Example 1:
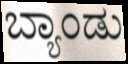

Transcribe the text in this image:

ಬ್ಯಾಂಡು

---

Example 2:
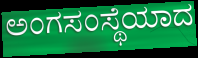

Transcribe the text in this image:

ಅಂಗಸಂಸ್ಥೆಯಾದ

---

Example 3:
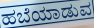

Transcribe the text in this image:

ಹಬೆಯಾಡುವ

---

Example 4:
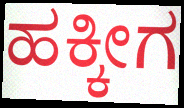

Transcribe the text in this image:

ಹಕ್ಕೀಗ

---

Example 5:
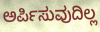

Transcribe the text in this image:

ಅರ್ಪಿಸುವುದಿಲ್ಲ